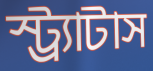
স্ট্র্যাটাস